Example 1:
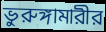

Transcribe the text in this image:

ভুরুঙ্গামারীর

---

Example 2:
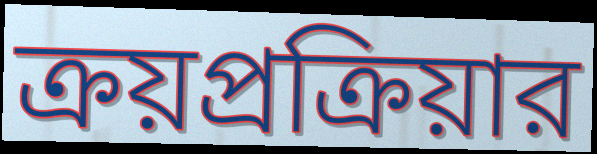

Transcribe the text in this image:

ক্রয়প্রক্রিয়ার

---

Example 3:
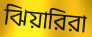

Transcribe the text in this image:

ঝিয়ারিরা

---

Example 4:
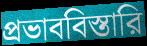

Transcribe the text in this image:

প্রভাববিস্তারি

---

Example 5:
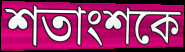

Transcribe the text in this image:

শতাংশকে